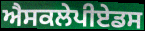
ਐਸਕਲੇਪੀਏਡਸ